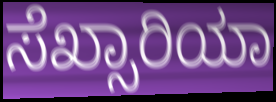
ಸೆಖ್ಸಾರಿಯಾ